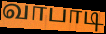
வாபாடி